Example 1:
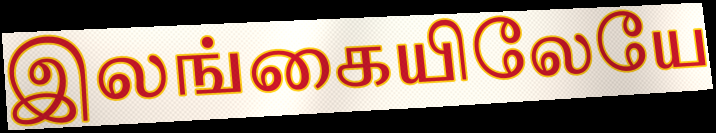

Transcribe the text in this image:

இலங்கையிலேயே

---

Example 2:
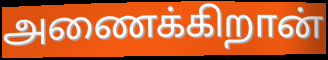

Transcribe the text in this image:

அணைக்கிறான்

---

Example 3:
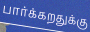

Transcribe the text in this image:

பார்க்கறதுக்கு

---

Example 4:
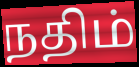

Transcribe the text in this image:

நதிம்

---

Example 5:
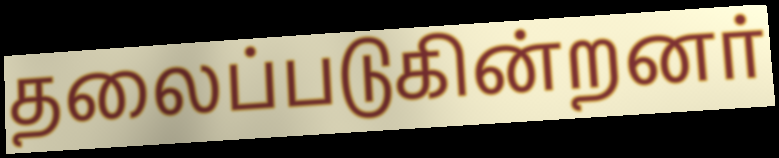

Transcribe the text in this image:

தலைப்படுகின்றனர்